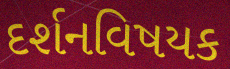
દર્શનવિષયક